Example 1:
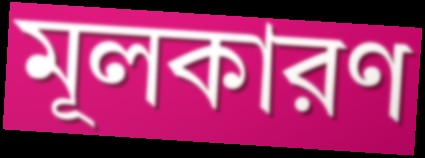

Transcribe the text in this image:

মূলকারণ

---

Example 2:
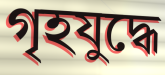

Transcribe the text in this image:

গৃহযুদ্ধে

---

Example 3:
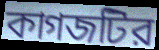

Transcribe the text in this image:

কাগজটির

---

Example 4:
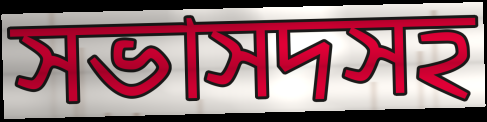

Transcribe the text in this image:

সভাসদসহ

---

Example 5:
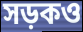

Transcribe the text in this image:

সড়কও